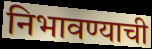
निभावण्याची